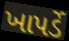
ખાપર્ડે